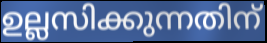
ഉല്ലസിക്കുന്നതിന്